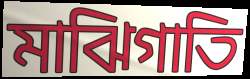
মাঝিগাতি